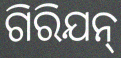
ଗିରିଯନ୍